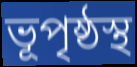
ভূপৃষ্ঠস্থ